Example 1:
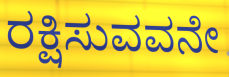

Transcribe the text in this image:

ರಕ್ಷಿಸುವವನೇ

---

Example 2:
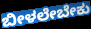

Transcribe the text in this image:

ಬೀಳಲೇಬೇಕು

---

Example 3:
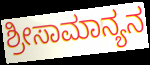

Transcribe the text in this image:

ಶ್ರೀಸಾಮಾನ್ಯನ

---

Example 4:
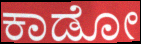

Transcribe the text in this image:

ಕಾಡೋ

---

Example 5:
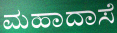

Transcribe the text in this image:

ಮಹಾದಾಸೆ